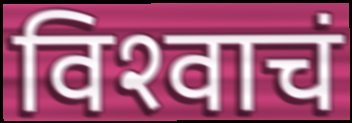
विश्वाचं